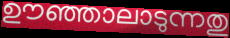
ഊഞ്ഞാലാടുന്നതു